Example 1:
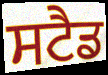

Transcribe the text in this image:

ਸਟੈਡ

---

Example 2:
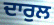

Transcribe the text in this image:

ਦਾਰੁਲ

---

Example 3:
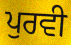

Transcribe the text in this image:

ਪੁਰਵੀ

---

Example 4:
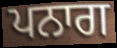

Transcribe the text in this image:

ਪਨਾਗ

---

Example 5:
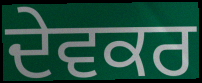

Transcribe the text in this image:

ਦੇਵਕਰ